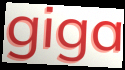
giga